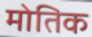
मोतिक